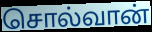
சொல்வான்